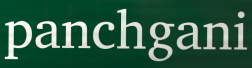
panchgani